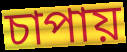
চাপায়